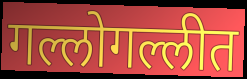
गल्लोगल्लीत